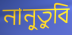
নানুতুবি